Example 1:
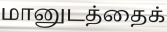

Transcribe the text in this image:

மானுடத்தைக்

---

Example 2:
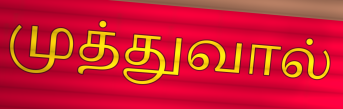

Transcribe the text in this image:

முத்துவால்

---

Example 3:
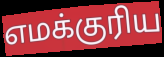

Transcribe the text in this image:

எமக்குரிய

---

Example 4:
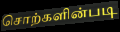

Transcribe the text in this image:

சொற்களின்படி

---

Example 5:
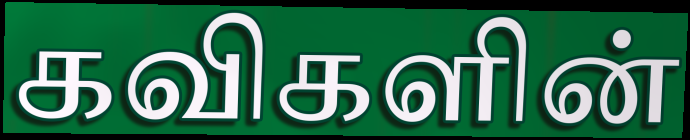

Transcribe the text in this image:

கவிகளின்